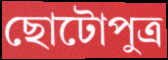
ছোটোপুত্র